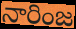
నారింజ